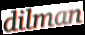
dilman